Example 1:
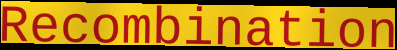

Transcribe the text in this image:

Recombination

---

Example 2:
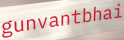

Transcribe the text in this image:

gunvantbhai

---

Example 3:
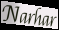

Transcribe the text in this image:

Narhar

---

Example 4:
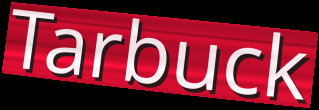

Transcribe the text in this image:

Tarbuck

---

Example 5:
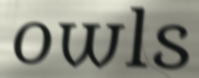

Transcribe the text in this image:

owls